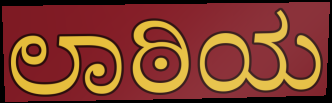
ಲಾಠಿಯ